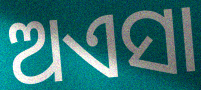
ଅଏସା